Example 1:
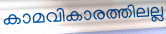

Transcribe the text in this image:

കാമവികാരത്തിലല്ല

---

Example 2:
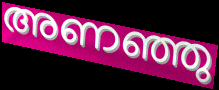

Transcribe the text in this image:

അണഞ്ഞു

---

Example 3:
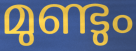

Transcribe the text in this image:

മുണ്ടും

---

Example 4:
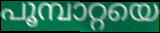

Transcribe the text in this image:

പൂമ്പാറ്റയെ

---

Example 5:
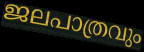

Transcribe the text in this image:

ജലപാത്രവും